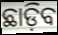
ଛାଡ଼ିବ